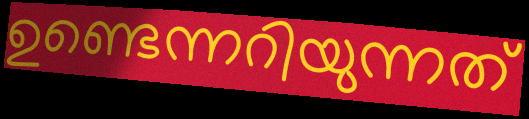
ഉണ്ടെന്നറിയുന്നത്